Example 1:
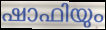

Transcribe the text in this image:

ഷാഫിയും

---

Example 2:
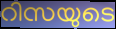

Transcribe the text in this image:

റിസയുടെ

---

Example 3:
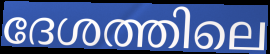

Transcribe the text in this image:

ദേശത്തിലെ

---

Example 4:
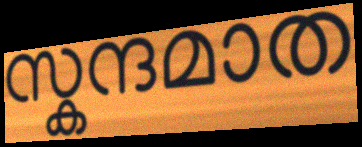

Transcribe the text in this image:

സ്കന്ദമാത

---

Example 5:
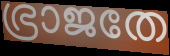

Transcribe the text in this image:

ഭ്രാജതേ